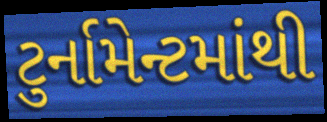
ટુર્નામેન્ટમાંથી